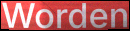
Worden